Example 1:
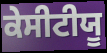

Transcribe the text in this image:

ਕੇਸੀਟੀਯੂ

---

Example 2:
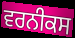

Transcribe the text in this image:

ਵਰਨੀਕਸ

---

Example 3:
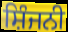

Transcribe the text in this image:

ਸ਼ਿੰਜਨੀ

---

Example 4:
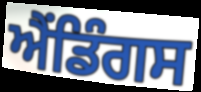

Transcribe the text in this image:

ਐਂਡਿੰਗਸ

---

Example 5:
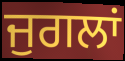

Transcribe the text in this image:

ਜੁਗਲਾਂ